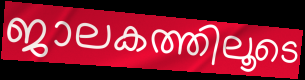
ജാലകത്തിലൂടെ